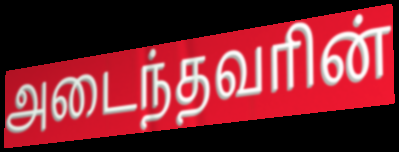
அடைந்தவரின்